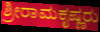
ಶ್ರೀರಾಮಕೃಷ್ಣರು